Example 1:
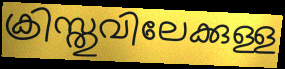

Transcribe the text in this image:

ക്രിസ്തുവിലേക്കുള്ള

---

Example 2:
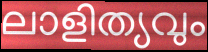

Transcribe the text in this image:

ലാളിത്യവും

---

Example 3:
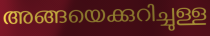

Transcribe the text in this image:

അങ്ങയെക്കുറിച്ചുള്ള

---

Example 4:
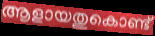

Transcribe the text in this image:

ആളായതുകൊണ്ട്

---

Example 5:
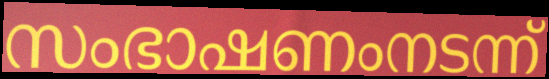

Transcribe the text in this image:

സംഭാഷണംനടന്ന്